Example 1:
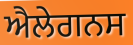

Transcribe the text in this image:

ਐਲੇਗਨਸ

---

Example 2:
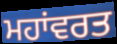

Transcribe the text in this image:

ਮਹਾਂਵਰਤ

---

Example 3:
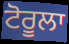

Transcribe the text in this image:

ਟੋਰੂਲਾ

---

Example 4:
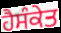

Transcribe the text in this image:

ਹੈਸੰਕੇਤ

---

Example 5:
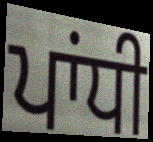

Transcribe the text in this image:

ਪਾਂਧੀ